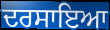
ਦਰਸਾਇਆ